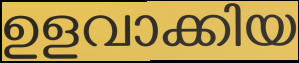
ഉളവാക്കിയ